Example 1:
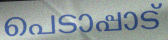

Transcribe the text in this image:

പെടാപ്പാട്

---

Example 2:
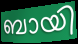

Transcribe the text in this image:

ബായി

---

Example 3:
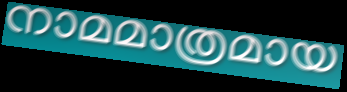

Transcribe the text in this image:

നാമമാത്രമായ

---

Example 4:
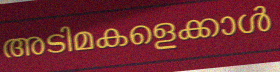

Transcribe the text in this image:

അടിമകളെക്കാൾ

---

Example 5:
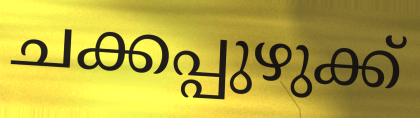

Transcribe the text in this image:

ചക്കപ്പുഴുക്ക്